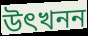
উৎখনন